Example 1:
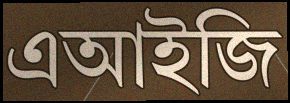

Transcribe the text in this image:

এআইজি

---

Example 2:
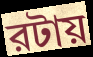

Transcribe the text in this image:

রটায়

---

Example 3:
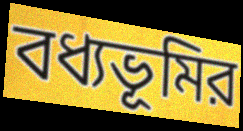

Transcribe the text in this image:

বধ্যভূমির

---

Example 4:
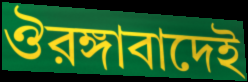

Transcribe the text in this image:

ঔরঙ্গাবাদেই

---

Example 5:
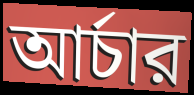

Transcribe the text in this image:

আর্চার